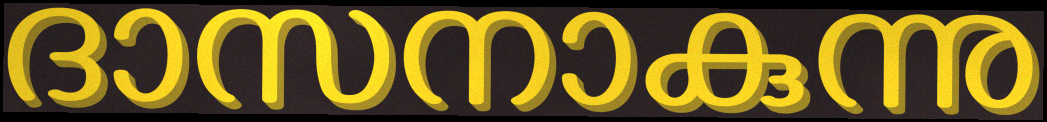
ദാസനാകുന്നു